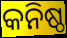
କନିଷ୍ଠ